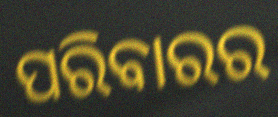
ପରିବାରର